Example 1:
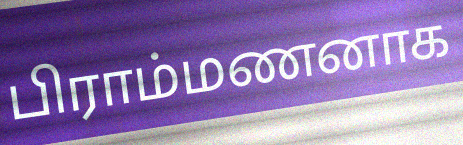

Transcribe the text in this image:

பிராம்மணனாக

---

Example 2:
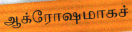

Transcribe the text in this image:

ஆக்ரோஷமாகச்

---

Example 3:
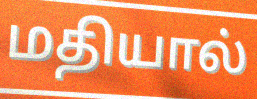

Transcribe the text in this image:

மதியால்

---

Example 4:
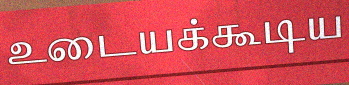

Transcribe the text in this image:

உடையக்கூடிய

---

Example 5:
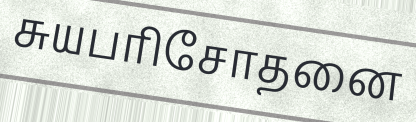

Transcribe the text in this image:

சுயபரிசோதனை